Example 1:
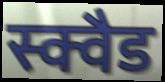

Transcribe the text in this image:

स्क्वैड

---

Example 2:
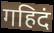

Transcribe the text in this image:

गहिदं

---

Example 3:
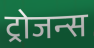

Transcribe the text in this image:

ट्रोजन्स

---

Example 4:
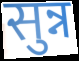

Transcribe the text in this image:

सुन्न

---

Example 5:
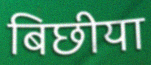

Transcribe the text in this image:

बिछीया